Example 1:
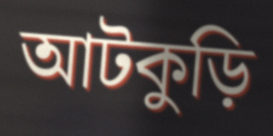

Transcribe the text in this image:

আটকুড়ি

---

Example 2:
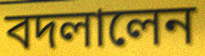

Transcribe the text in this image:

বদলালেন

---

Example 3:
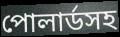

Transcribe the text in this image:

পোলার্ডসহ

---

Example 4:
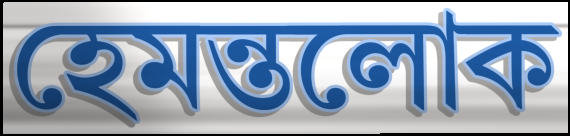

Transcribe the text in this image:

হেমন্তলোক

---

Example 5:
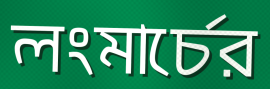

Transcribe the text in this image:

লংমার্চের